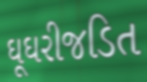
ઘૂઘરીજડિત